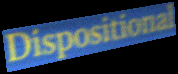
Dispositional